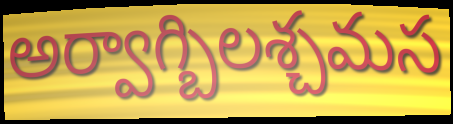
అర్వాగ్బిలశ్చమస